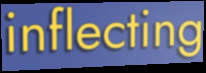
inflecting